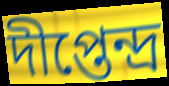
দীপ্তেন্দ্র